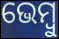
ଭେମ୍ବୁ